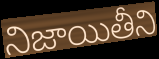
నిజాయితీని